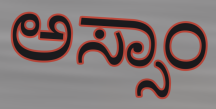
ಅಸ್ಸಾಂ